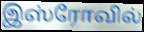
இஸ்ரோவில்